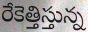
రేకెత్తిస్తున్న